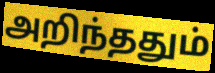
அறிந்ததும்